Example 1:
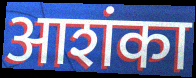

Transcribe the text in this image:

आशंका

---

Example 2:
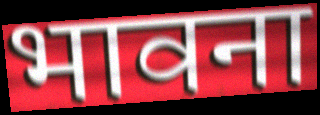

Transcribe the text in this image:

भावना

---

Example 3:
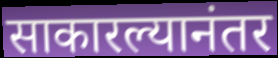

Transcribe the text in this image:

साकारल्यानंतर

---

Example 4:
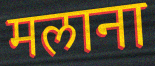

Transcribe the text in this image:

मलाना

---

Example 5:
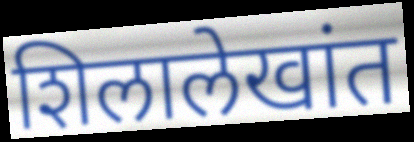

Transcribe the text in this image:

शिलालेखांत